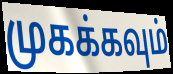
முகக்கவும்